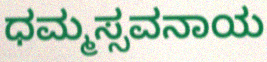
ಧಮ್ಮಸ್ಸವನಾಯ